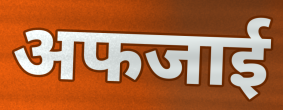
अफजाई